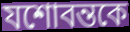
যশোবন্তকে